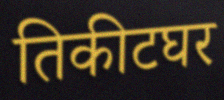
तिकीटघर